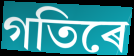
গতিৰে